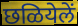
छळियेलें